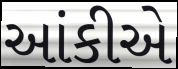
આંકીએ